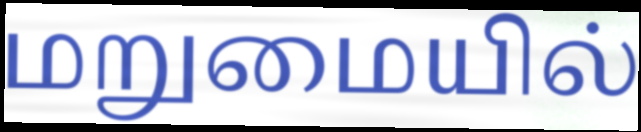
மறுமையில்